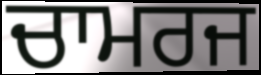
ਚਾਮਰਜ